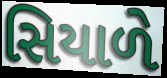
સિયાળે